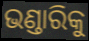
ଭଣ୍ଡାରିକୁ